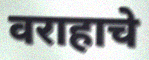
वराहाचे